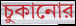
চুকানোর